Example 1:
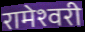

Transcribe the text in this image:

रामेश्वरी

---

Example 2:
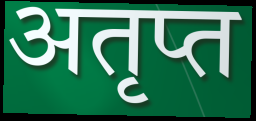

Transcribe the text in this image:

अतृप्त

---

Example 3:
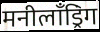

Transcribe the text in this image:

मनीलॉंड्रिंग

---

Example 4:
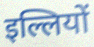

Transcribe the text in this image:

इल्लियों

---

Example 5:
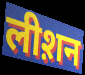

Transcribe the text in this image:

लीश़न